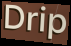
Drip